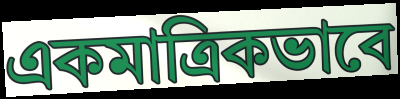
একমাত্রিকভাবে